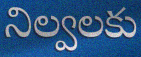
నిల్వలకు